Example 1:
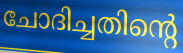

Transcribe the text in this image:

ചോദിച്ചതിന്റെ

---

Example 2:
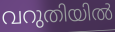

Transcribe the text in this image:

വറുതിയിൽ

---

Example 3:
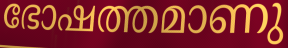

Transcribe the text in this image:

ഭോഷത്തമാണു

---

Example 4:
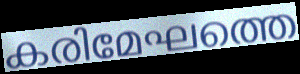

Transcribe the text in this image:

കരിമേഘത്തെ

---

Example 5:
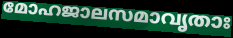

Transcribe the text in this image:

മോഹജാലസമാവൃതാഃ